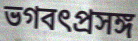
ভগবৎপ্রসঙ্গ